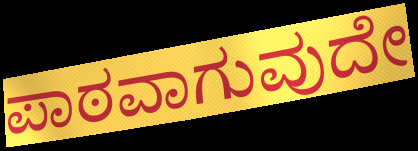
ಪಾಠವಾಗುವುದೇ